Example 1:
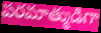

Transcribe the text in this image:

పరమాత్ముడిగా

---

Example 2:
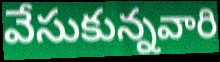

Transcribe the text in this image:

వేసుకున్నవారి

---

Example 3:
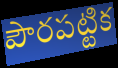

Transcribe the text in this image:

పౌరపట్టిక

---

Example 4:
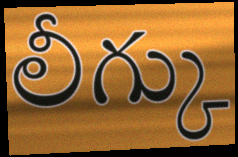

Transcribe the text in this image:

లీగ్కు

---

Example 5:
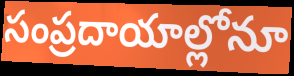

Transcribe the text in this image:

సంప్రదాయాల్లోనూ